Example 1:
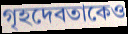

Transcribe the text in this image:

গৃহদেবতাকেও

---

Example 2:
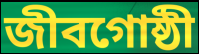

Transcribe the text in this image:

জীবগোষ্ঠী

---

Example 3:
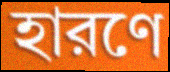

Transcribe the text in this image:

হারণে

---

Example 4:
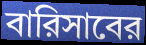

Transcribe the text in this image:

বারিসাবের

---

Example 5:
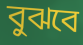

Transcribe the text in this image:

বুঝবে